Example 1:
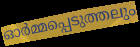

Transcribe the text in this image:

ഓർമ്മപ്പെടുത്തലും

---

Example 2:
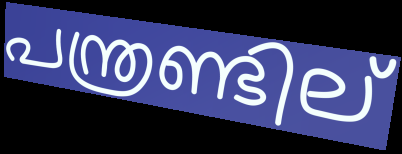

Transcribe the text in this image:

പന്ത്രണ്ടില്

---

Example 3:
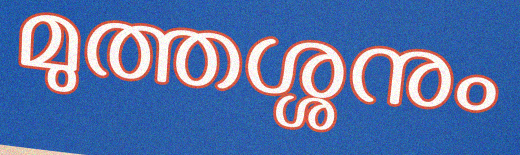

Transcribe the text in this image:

മുത്തശ്ശനും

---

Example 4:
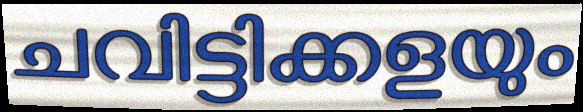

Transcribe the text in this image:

ചവിട്ടിക്കളയും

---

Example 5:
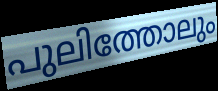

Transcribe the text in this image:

പുലിത്തോലും